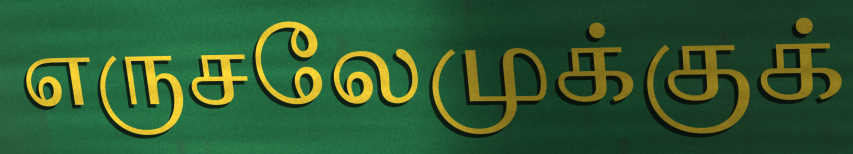
எருசலேமுக்குக்